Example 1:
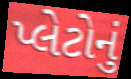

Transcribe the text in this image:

પ્લેટોનું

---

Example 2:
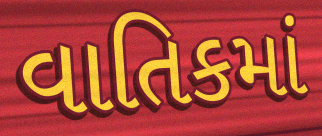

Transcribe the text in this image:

વાતિકમાં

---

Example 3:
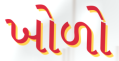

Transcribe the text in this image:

ખોળો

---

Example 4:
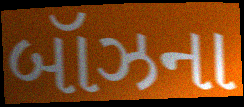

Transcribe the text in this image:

બૉઝના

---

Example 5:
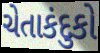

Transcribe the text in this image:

ચેતાકંદુકો